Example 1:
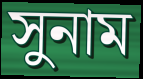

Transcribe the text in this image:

সুনাম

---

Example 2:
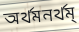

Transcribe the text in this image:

অর্থমনর্থম্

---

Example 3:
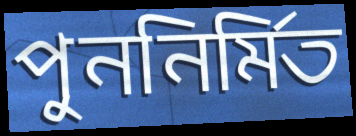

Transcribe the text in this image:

পুননির্মিত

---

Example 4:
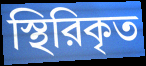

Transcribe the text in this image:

স্থিরিকৃত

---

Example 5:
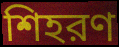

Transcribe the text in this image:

শিহরণ